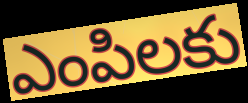
ఎంపిలకు